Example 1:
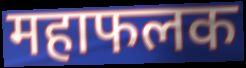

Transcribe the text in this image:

महाफलक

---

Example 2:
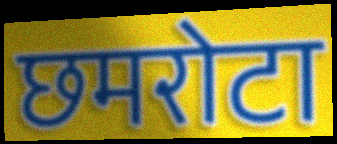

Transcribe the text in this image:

छमरोटा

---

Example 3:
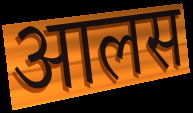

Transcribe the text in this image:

आलस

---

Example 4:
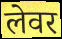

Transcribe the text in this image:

लेवर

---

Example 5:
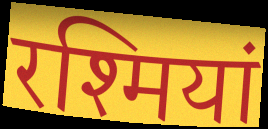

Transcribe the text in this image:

रश्मियां